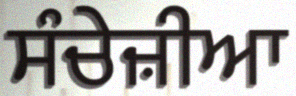
ਸੰਚੇਜ਼ੀਆ